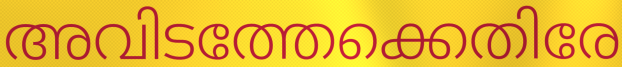
അവിടത്തേക്കെതിരേ